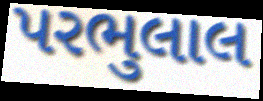
પરભુલાલ